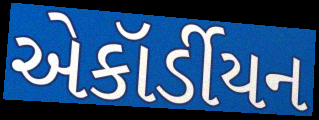
એકૉર્ડીયન